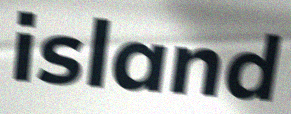
island